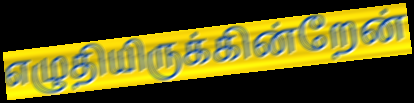
எழுதியிருக்கின்றேன்